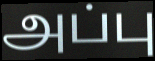
அப்பு